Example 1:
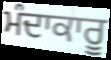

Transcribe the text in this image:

ਮੰਦਾਕਾਰੂ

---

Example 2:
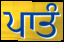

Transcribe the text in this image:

ਪਾਤੰ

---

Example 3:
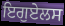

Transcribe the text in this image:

ਇਗੁਏਲਸ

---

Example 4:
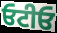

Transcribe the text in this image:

ਓਟੀਓ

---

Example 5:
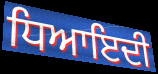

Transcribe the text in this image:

ਧਿਆਇਦੀ